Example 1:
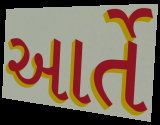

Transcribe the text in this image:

આર્તે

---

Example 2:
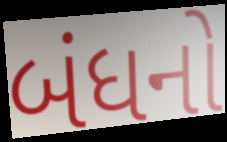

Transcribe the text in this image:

બંધનો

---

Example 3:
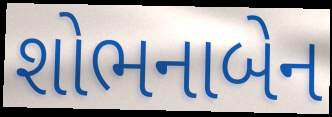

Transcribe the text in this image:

શોભનાબેન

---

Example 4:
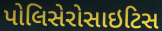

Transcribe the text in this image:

પોલિસેરોસાઇટિસ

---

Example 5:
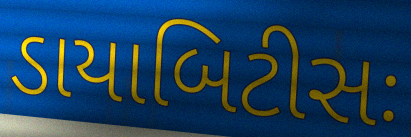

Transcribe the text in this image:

ડાયાબિટીસઃ